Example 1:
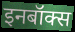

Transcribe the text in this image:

इनबॉक्स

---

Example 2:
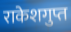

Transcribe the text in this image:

राकेशगुप्त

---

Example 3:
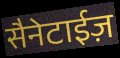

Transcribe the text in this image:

सैनेटाईज़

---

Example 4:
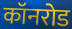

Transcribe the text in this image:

कॉनरोड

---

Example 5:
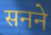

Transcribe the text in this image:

सनने